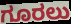
ಗೂರಲು